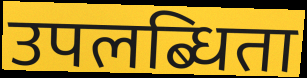
उपलब्धिता